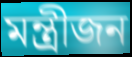
মন্ত্ৰীজন